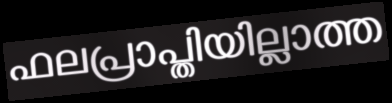
ഫലപ്രാപ്തിയില്ലാത്ത